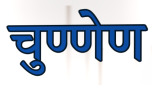
चुण्णेण